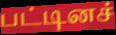
பட்டினச்